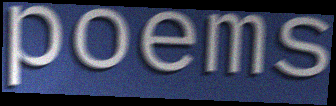
poems